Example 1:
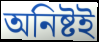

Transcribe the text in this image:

অনিষ্টই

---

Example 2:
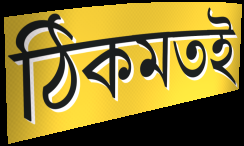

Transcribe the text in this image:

ঠিকমতই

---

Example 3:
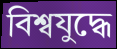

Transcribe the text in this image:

বিশ্বযুদ্ধে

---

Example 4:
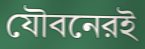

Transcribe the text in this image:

যৌবনেরই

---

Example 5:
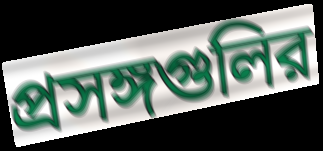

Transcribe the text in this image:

প্রসঙ্গগুলির